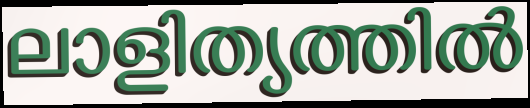
ലാളിത്യത്തിൽ